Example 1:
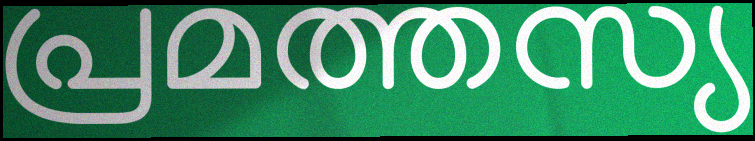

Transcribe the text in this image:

പ്രമത്തസ്യ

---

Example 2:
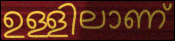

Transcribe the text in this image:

ഉള്ളിലാണ്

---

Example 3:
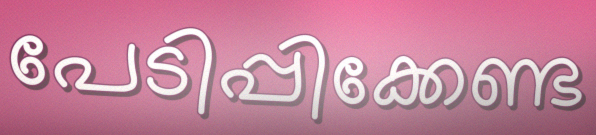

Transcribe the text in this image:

പേടിപ്പിക്കേണ്ട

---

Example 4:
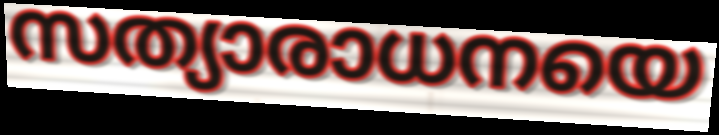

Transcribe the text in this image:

സത്യാരാധനയെ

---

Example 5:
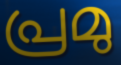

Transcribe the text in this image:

പ്രമു